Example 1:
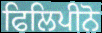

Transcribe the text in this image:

ਫਿਲਿਪੀਨੋ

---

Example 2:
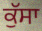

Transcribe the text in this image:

ਕੁੱਸਾ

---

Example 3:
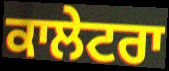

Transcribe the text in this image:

ਕਾਲੇਟਰਾ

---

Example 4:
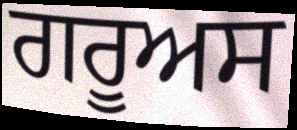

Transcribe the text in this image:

ਗਰੂਅਸ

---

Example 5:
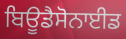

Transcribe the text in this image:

ਬਿਊਡੈਸੋਨਾਈਡ